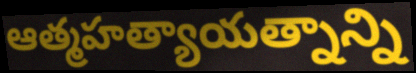
ఆత్మహత్యాయత్నాన్ని